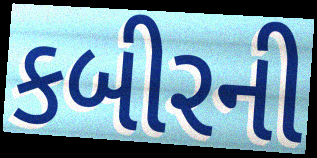
કબીરની